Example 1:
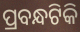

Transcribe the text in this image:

ପ୍ରବନ୍ଧଟିକି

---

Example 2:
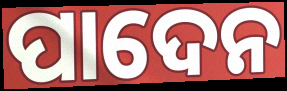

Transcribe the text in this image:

ପାଦେନ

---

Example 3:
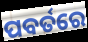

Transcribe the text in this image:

ପବର୍ତରେ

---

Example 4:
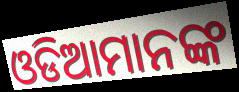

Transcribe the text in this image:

ଓଡିଆମାନଙ୍କ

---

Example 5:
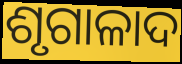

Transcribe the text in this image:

ଶୃଗାଳାଦ